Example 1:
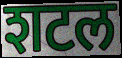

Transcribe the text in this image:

शटल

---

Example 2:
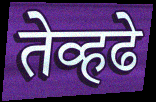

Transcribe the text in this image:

तेव्हढे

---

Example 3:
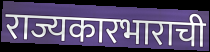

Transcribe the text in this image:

राज्यकारभाराची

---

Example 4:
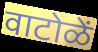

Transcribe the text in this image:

वाटोळें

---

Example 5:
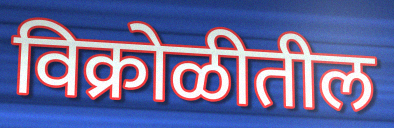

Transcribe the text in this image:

विक्रोळीतील